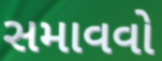
સમાવવો